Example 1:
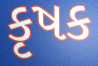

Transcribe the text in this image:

કૃષક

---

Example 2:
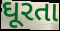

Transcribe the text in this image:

ઘૂરતા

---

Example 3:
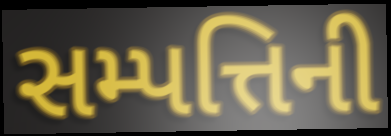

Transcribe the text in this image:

સમ્પત્તિની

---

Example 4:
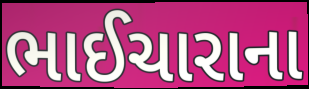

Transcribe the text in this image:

ભાઈચારાના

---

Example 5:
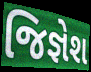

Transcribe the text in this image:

જિજ્ઞેશ